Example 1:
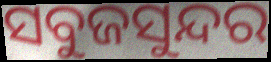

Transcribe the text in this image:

ସବୁଜସୁନ୍ଦର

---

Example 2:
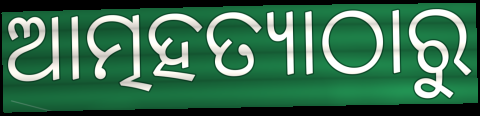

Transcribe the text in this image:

ଆତ୍ମହତ୍ୟାଠାରୁ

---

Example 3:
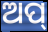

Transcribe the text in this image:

ଅପ୍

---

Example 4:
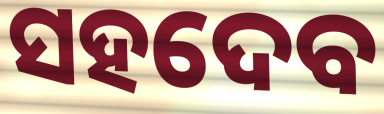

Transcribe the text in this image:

ସହଦେବ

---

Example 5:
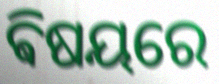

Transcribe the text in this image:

ଵିଷୟରେ